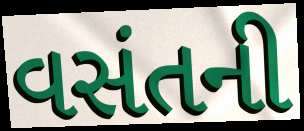
વસંતની